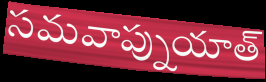
సమవాప్నుయాత్